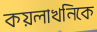
কয়লাখনিকে